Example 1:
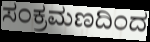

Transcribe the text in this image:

ಸಂಕ್ರಮಣದಿಂದ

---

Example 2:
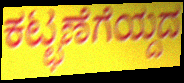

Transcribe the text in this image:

ಕಟ್ಟಣೆಗೆಯ್ದದ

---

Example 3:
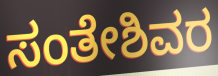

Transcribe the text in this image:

ಸಂತೇಶಿವರ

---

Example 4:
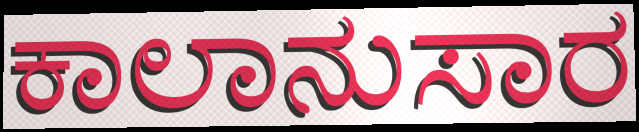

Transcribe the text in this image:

ಕಾಲಾನುಸಾರ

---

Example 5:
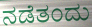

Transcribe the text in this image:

ನಡೆತಂದು